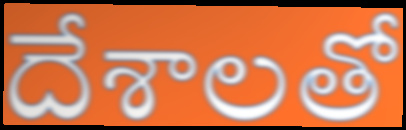
దేశాలతో